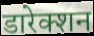
डारेक्शन